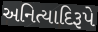
અનિત્યાદિરૂપે